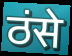
ठंसे